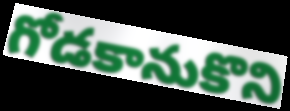
గోడకానుకొని